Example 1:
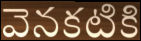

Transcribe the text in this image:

వెనకటికి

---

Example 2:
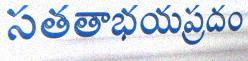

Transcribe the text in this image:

సతతాభయప్రదం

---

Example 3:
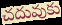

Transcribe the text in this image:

చదువుకు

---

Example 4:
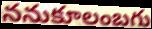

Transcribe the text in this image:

ననుకూలంబగు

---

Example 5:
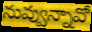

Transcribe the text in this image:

నువ్వున్నావో